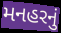
મનહરનું